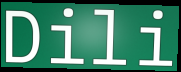
Dili